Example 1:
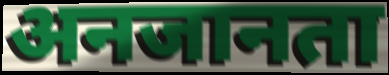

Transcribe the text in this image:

अनजानता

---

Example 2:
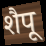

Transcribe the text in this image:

शैपू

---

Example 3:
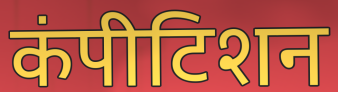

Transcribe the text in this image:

कंपीटिशन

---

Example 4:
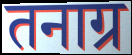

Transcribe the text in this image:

तनाग्र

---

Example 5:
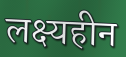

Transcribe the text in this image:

लक्ष्यहीन